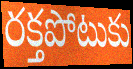
రక్తపోటుకు